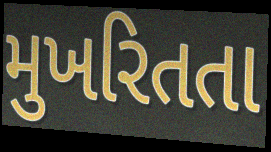
મુખરિતતા